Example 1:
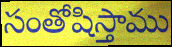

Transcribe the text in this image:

సంతోషిస్తాము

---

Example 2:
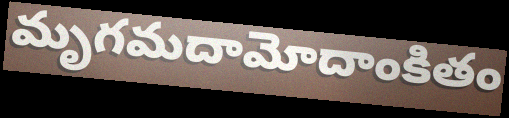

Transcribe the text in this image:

మృగమదామోదాంకితం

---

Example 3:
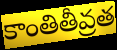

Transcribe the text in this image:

కాంతితీవ్రత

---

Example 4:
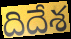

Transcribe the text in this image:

దిదేశ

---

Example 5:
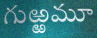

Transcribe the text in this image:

గుఱ్ఱమూ